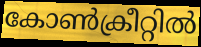
കോൺക്രീറ്റിൽ